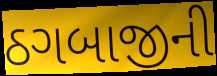
ઠગબાજીની